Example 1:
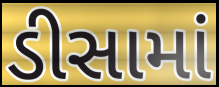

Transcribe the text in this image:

ડીસામાં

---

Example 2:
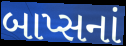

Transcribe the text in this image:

બાપ્સનાં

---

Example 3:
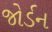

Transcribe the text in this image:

જોર્ડન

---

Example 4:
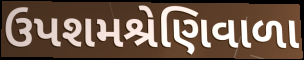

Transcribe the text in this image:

ઉપશમશ્રેણિવાળા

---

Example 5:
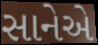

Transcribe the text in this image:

સાનેએ